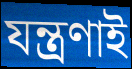
যন্ত্রণাই